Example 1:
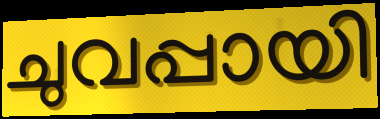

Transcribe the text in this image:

ചുവപ്പായി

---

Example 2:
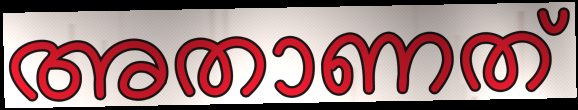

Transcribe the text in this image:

അതാണത്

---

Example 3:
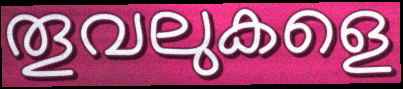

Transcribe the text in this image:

തൂവലുകളെ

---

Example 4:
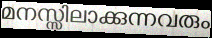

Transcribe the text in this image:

മനസ്സിലാക്കുന്നവരും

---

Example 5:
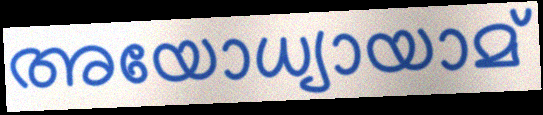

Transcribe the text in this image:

അയോധ്യായാമ്